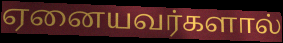
ஏனையவர்களால்